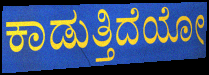
ಕಾಡುತ್ತಿದೆಯೋ